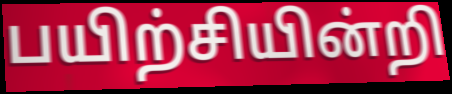
பயிற்சியின்றி